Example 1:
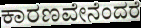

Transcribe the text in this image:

ಕಾರಣವೇನೆಂದರೆ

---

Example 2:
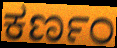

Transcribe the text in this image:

ಕರ್ಣಂ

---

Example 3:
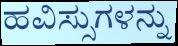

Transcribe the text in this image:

ಹವಿಸ್ಸುಗಳನ್ನು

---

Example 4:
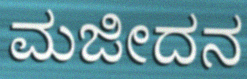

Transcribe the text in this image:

ಮಜೀದನ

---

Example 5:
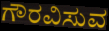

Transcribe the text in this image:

ಗೌರವಿಸುವ